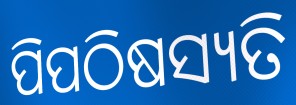
ପିପଠିଷସ୍ଯତି